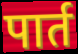
पार्त